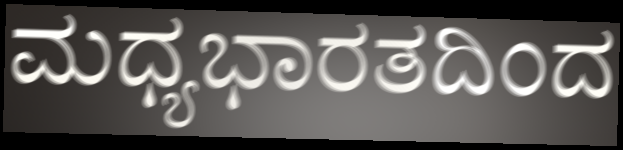
ಮಧ್ಯಭಾರತದಿಂದ